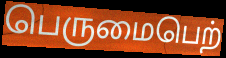
பெருமைபெற்